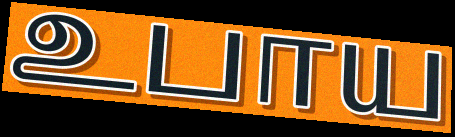
உபாய